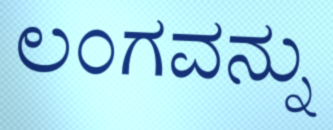
ಲಂಗವನ್ನು